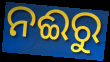
ନଈରୁ